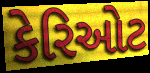
કેરિઓટ